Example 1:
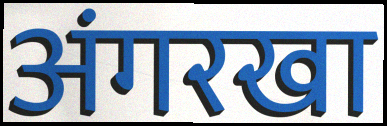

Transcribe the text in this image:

अंगरखा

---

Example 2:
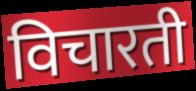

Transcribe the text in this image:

विचारती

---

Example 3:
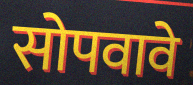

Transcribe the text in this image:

सोपवावे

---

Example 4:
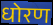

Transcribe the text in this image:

धोरण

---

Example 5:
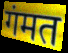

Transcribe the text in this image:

गंमत